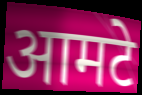
आमटे